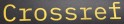
Crossref